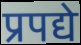
प्रपद्ये